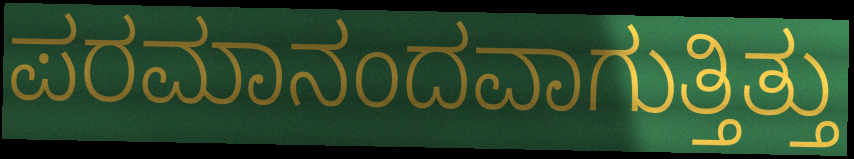
ಪರಮಾನಂದವಾಗುತ್ತಿತ್ತು